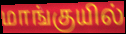
மாங்குயில்